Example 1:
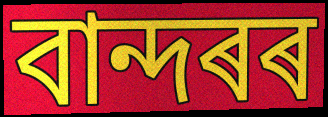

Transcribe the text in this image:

বান্দৰৰ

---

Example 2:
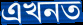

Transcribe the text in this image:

এখনত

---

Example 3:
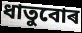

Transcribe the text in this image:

ধাতুবোৰ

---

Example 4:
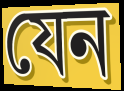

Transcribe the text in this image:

যেন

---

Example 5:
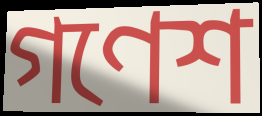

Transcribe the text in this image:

গণেশ